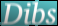
Dibs